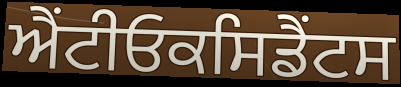
ਐਂਟੀਓਕਸਿਡੈਂਟਸ